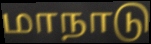
மாநாடு